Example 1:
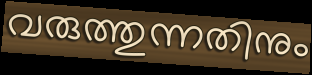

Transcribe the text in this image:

വരുത്തുന്നതിനും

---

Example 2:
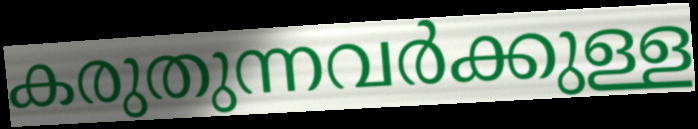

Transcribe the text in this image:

കരുതുന്നവർക്കുള്ള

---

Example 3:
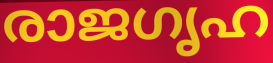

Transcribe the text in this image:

രാജഗൃഹ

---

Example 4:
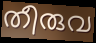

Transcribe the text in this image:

തീരുവ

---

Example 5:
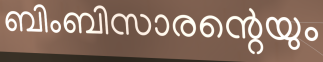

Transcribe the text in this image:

ബിംബിസാരന്റെയും